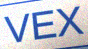
VEX